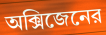
অক্সিজেনের